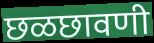
छळछावणी